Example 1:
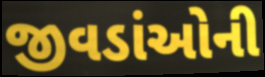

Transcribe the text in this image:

જીવડાંઓની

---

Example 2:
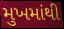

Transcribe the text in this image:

મુખમાંથી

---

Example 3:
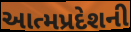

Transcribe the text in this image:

આત્મપ્રદેશની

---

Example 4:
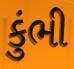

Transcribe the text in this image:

કુંભી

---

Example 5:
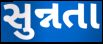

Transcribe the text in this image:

સુન્નતા